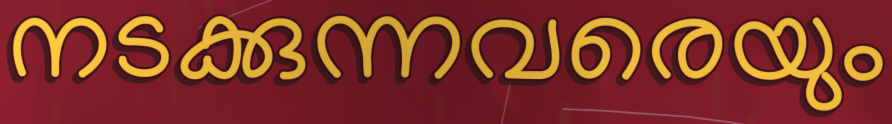
നടക്കുന്നവരെയും